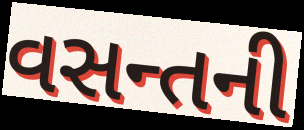
વસન્તની